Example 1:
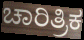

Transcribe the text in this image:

ಚಾರಿತ್ರಿಕ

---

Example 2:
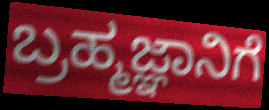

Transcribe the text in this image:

ಬ್ರಹ್ಮಜ್ಞಾನಿಗೆ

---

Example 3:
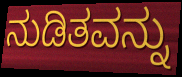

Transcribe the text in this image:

ನುಡಿತವನ್ನು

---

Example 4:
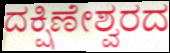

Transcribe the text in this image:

ದಕ್ಷಿಣೇಶ್ವರದ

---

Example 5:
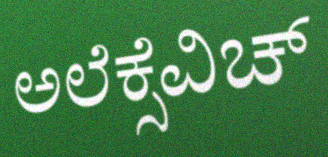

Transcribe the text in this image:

ಅಲೆಕ್ಸೆವಿಚ್